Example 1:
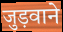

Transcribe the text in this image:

जुड़वाने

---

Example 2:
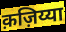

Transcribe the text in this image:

क़ज़िय्या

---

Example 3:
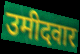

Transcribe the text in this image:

उमीदवार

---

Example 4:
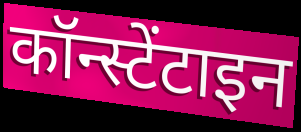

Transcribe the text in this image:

कॉन्स्टेंटाइन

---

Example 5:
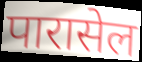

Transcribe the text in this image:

पारासेल